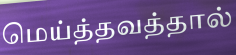
மெய்த்தவத்தால்